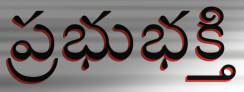
ప్రభుభక్తి